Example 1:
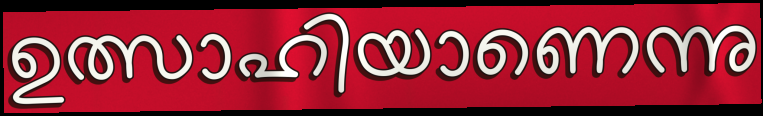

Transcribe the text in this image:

ഉത്സാഹിയാണെന്നു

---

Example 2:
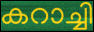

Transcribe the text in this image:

കറാച്ചി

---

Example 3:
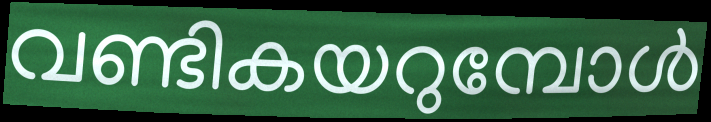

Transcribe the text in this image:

വണ്ടികയറുമ്പോൾ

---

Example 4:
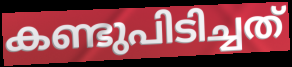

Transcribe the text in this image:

കണ്ടുപിടിച്ചത്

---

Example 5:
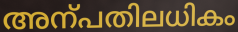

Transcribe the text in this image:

അന്പതിലധികം